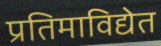
प्रतिमाविद्येत